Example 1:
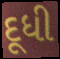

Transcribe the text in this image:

દૂધી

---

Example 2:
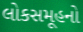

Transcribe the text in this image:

લોકસમૂહનો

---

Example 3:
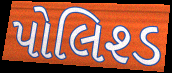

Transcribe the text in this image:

પોલિશ્ડ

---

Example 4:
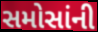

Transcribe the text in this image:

સમોસાંની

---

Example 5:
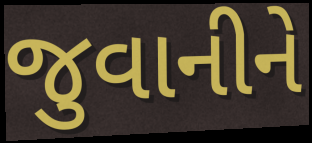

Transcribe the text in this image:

જુવાનીને